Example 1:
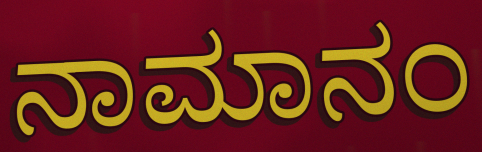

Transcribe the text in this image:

ನಾಮಾನಂ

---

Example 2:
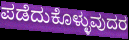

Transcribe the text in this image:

ಪಡೆದುಕೊಳ್ಳುವುದರ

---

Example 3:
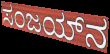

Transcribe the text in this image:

ಸಂಜಯ್‌ನ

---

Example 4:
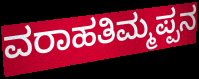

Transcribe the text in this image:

ವರಾಹತಿಮ್ಮಪ್ಪನ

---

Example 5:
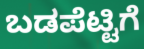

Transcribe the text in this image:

ಬಡಪೆಟ್ಟಿಗೆ